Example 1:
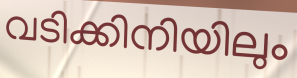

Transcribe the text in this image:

വടിക്കിനിയിലും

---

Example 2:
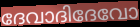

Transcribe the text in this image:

ദേവാദിദേവോ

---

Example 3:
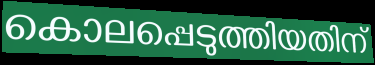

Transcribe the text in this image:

കൊലപ്പെടുത്തിയതിന്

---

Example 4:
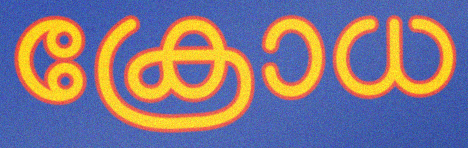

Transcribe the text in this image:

ക്രോധ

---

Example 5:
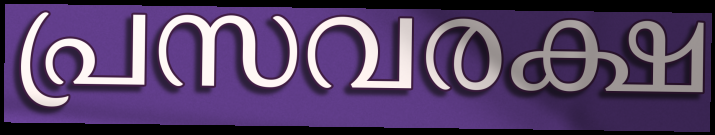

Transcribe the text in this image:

പ്രസവരക്ഷ